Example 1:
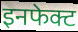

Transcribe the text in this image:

इनफेक्ट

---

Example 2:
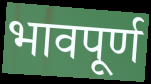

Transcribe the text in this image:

भावपूर्ण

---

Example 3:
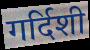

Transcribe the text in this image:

गर्दिशी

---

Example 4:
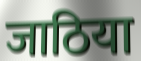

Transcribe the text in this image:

जाठिया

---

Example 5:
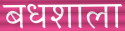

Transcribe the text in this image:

बधशाला